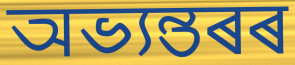
অভ্যন্তৰৰ